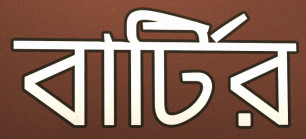
বার্টির